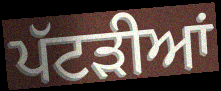
ਪੱਟੜੀਆਂ